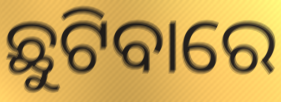
ଛୁଟିବାରେ